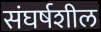
संघर्षशील